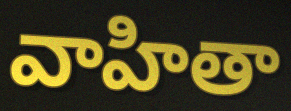
వాహితా